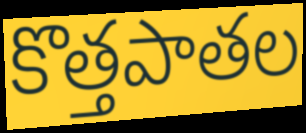
కొత్తపాతల